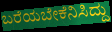
ಬರೆಯಬೇಕೆನಿಸಿದ್ದು